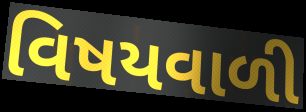
વિષયવાળી